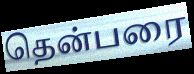
தென்பரை